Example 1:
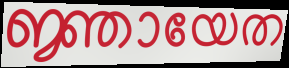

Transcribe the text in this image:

ജ്ഞായേത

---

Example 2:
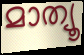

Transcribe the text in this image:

മാത്യൂ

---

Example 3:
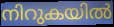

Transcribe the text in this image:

നിറുകയിൽ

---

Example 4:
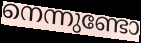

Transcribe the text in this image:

നെന്നുണ്ടോ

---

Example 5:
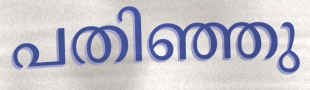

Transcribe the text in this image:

പതിഞ്ഞു